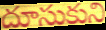
దూసుకుని